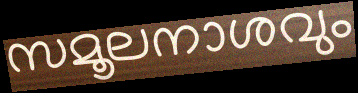
സമൂലനാശവും